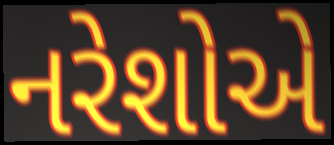
નરેશોએ